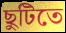
ছুটিতে